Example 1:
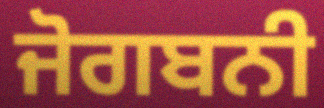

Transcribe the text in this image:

ਜੋਗਬਨੀ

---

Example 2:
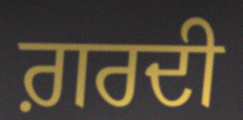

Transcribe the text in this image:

ਗ਼ਰਦੀ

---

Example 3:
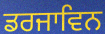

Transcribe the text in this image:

ਡਰਜਾਵਿਨ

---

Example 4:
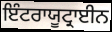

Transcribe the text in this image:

ਇੰਟਰਾਯੂਟ੍ਰਾਈਨ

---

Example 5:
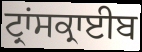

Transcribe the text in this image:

ਟ੍ਰਾਂਸਕ੍ਰਾਈਬ